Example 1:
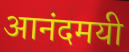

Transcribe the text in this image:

आनंदमयी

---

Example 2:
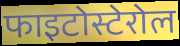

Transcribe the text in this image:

फाइटोस्टेरोल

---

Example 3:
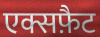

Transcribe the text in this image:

एक्सफ़ैट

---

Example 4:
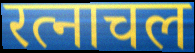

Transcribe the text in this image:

रत्नाचल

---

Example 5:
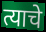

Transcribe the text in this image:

त्याचे